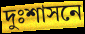
দুঃশাসনে